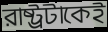
রাষ্ট্রটাকেই